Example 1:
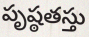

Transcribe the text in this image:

పృష్ఠతస్తు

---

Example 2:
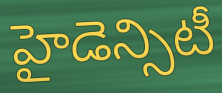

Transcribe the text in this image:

హైడెన్సిటీ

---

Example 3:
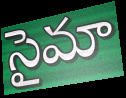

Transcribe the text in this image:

సైమా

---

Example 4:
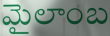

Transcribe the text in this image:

మైలాంబ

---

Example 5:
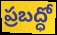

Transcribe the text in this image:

ప్రబద్ధో